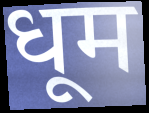
धूम